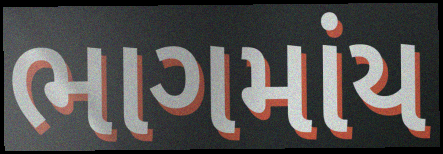
ભાગમાંય